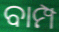
ବାମ୍ପ